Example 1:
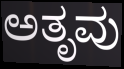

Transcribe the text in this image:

ಅತೃವು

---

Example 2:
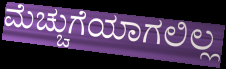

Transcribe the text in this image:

ಮೆಚ್ಚುಗೆಯಾಗಲಿಲ್ಲ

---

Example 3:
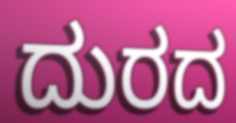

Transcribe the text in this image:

ದುರದ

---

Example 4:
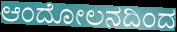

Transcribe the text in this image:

ಆಂದೋಲನದಿಂದ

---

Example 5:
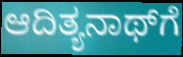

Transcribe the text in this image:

ಆದಿತ್ಯನಾಥ್‌ಗೆ